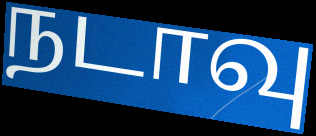
நடாவு